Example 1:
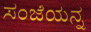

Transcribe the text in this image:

ಸಂಜೆಯನ್ನ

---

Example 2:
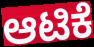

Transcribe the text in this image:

ಆಟಿಕೆ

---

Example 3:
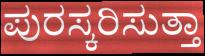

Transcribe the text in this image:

ಪುರಸ್ಕರಿಸುತ್ತಾ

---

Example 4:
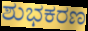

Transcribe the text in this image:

ಶುಭಕರಣ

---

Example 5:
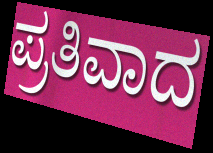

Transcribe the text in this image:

ಪ್ರತಿವಾದ